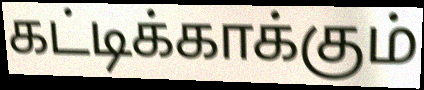
கட்டிக்காக்கும்